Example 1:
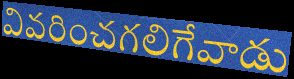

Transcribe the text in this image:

వివరించగలిగేవాడు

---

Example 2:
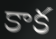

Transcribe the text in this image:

కాక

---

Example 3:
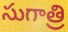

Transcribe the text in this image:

సుగాత్రి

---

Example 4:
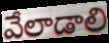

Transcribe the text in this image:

వేలాడాలి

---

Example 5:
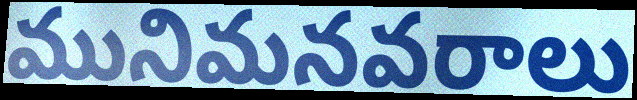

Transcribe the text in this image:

మునిమనవరాలు